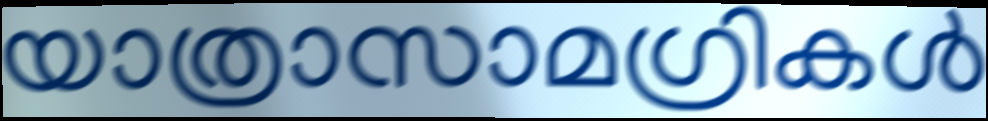
യാത്രാസാമഗ്രികൾ